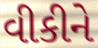
વીકીને